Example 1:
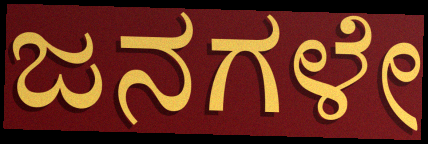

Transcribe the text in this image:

ಜನಗಳೇ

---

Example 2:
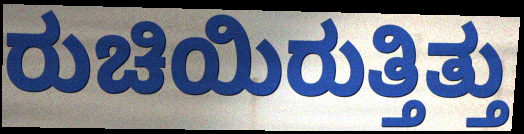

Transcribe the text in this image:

ರುಚಿಯಿರುತ್ತಿತ್ತು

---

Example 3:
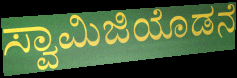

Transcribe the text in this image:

ಸ್ವಾಮಿಜಿಯೊಡನೆ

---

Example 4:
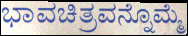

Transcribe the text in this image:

ಭಾವಚಿತ್ರವನ್ನೊಮ್ಮೆ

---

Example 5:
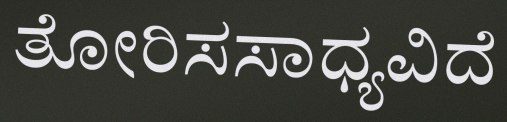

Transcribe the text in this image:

ತೋರಿಸಸಾಧ್ಯವಿದೆ